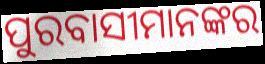
ପୁରବାସୀମାନଙ୍କର